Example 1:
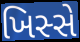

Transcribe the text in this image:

ખિસ્સે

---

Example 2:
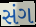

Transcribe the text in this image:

સંગ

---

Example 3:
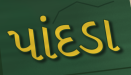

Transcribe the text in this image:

પાંદડા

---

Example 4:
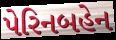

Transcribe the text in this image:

પેરિનબહેન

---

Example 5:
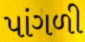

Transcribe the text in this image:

પાંગળી